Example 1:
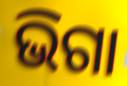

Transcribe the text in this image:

ଭିଗା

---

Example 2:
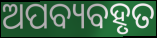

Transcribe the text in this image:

ଅପବ୍ୟବହୃତ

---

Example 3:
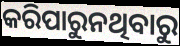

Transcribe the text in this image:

କରିପାରୁନଥିବାରୁ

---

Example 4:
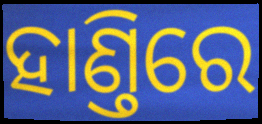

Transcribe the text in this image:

ହାଣ୍ତିରେ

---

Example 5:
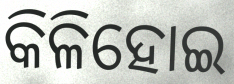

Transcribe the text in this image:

କିଳିହୋଇ